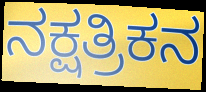
ನಕ್ಷತ್ರಿಕನ